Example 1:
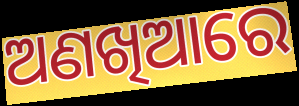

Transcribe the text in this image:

ଅଣଖିଆରେ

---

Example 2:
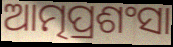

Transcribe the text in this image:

ଆତ୍ମପ୍ରଶଂସା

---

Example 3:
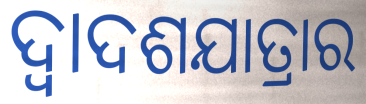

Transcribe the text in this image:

ଦ୍ୱାଦଶଯାତ୍ରାର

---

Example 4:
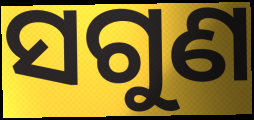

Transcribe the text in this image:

ସଗୁଣ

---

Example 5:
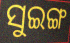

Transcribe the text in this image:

ସୁଇଙ୍ଗ